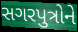
સગરપુત્રોને